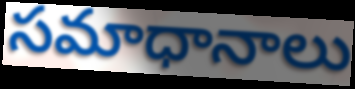
సమాధానాలు